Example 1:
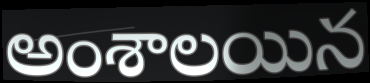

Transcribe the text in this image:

అంశాలయిన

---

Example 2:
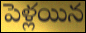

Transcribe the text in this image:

పెళ్లయిన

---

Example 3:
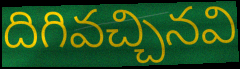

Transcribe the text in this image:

దిగివచ్చినవి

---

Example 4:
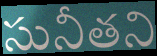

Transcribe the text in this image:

సునీతని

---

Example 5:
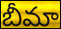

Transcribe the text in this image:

బీమా